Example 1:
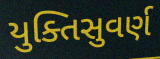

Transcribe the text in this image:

યુક્તિસુવર્ણ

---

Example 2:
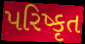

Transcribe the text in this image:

પરિષ્કૃત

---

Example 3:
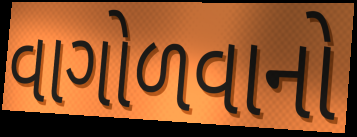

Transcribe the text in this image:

વાગોળવાનો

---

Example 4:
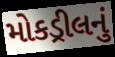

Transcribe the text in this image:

મોકડ્રીલનું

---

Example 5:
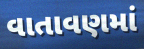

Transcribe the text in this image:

વાતાવણમાં